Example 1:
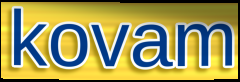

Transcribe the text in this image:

kovam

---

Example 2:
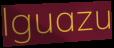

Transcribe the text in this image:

Iguazu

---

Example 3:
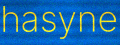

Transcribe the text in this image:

hasyne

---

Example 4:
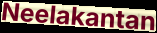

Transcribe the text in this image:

Neelakantan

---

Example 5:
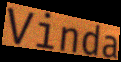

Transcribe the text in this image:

Vinda